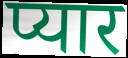
प्यार